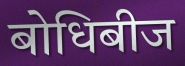
बोधिबीज